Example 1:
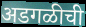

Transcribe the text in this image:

अडगळीची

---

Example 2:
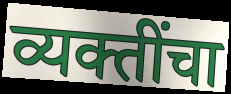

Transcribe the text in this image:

व्यक्तींचा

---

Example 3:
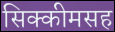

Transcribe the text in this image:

सिक्कीमसह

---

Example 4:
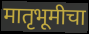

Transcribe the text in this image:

मातृभूमीचा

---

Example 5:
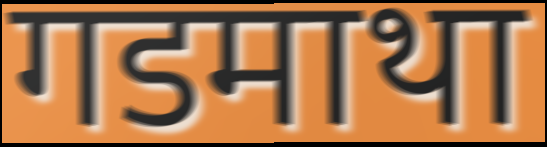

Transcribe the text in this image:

गडमाथा